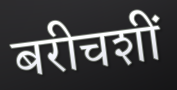
बरीचशीं